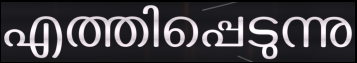
എത്തിപ്പെടുന്നു